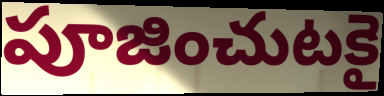
పూజించుటకై